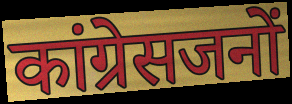
कांग्रेसजनों